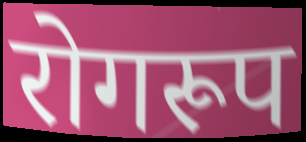
रोगरूप